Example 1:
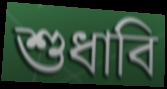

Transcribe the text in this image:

শুধাবি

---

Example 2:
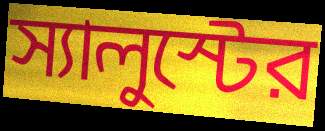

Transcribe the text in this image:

স্যালুস্টের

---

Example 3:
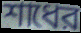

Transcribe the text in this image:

শাধের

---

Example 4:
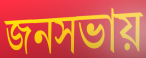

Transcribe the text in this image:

জনসভায়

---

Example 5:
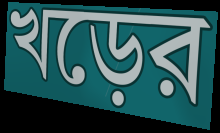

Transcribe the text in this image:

খড়ের